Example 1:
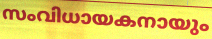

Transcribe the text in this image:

സംവിധായകനായും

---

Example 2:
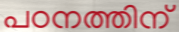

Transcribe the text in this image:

പഠനത്തിന്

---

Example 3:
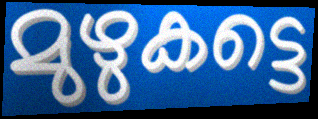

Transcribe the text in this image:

മുഴുകട്ടെ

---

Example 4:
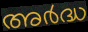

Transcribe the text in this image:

അർദ്ധ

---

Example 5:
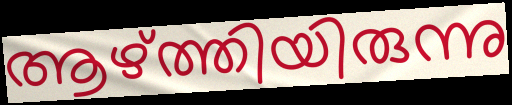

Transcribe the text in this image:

ആഴ്ത്തിയിരുന്നു